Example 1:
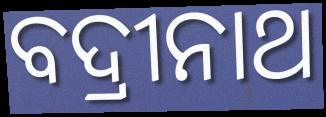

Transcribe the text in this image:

ବଦ୍ରୀନାଥ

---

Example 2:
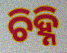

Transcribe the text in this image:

ଚିହ୍ନି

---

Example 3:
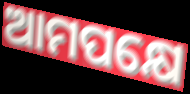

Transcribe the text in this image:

ଆମପକ୍ଷେ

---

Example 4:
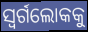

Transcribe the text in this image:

ସ୍ବର୍ଗଲୋକକୁ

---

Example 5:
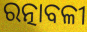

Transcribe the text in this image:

ରତ୍ନାବଳୀ